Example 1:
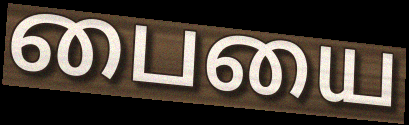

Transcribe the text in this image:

பையை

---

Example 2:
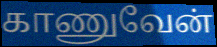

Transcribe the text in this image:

காணுவேன்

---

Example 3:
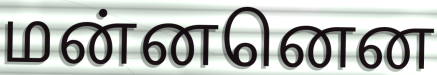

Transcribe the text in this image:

மன்னனென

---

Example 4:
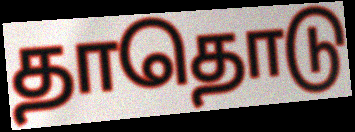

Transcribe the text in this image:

தாதொடு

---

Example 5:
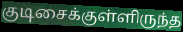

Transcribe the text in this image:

குடிசைக்குள்ளிருந்த